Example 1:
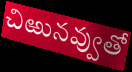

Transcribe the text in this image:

చిఱునవ్వుతో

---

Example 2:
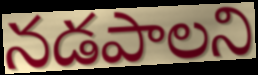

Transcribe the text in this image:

నడపాలని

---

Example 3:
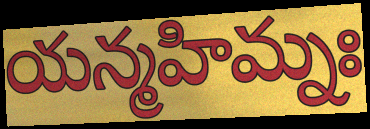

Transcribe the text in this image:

యన్మహిమ్నః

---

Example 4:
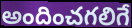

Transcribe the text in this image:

అందించగలిగే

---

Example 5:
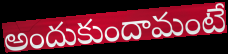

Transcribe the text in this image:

అందుకుందామంటే